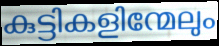
കുട്ടികളിന്മേലും